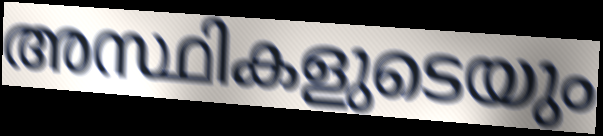
അസ്ഥികളുടെയും